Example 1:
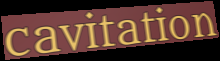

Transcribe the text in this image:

cavitation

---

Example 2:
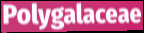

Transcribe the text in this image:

Polygalaceae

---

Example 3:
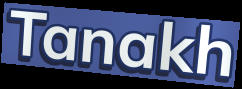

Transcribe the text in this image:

Tanakh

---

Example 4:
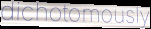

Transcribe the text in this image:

dichotomously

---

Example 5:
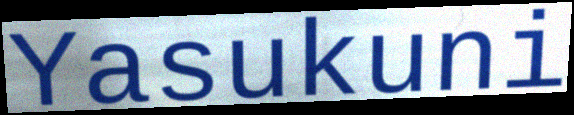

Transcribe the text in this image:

Yasukuni